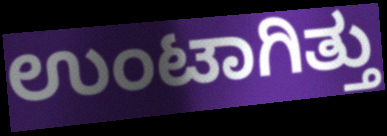
ಉಂಟಾಗಿತ್ತು